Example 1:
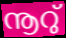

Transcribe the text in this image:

നൂറു്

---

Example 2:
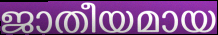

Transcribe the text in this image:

ജാതീയമായ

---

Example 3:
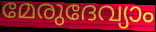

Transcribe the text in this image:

മേരുദേവ്യാം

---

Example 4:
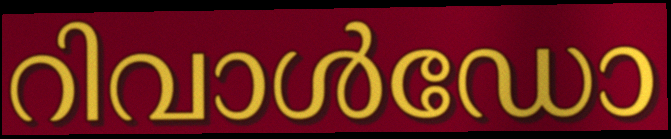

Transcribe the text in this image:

റിവാൾഡോ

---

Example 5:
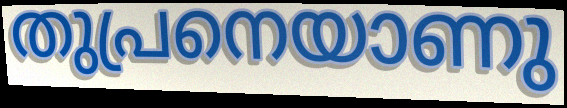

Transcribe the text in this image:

തുപ്രനെയാണു